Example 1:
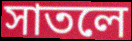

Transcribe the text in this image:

সাতলে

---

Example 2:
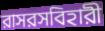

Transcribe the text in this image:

রাসরসবিহারী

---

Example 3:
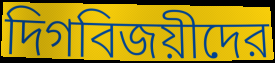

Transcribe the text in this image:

দিগবিজয়ীদের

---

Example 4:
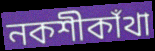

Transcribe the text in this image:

নকশীকাঁথা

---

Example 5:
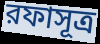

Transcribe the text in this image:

রফাসূত্র